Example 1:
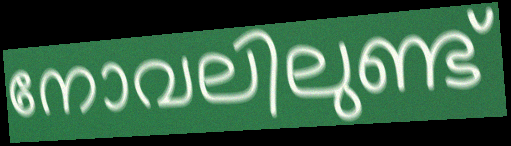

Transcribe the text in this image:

നോവലിലുണ്ട്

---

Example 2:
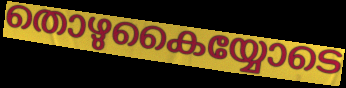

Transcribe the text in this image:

തൊഴുകൈയ്യോടെ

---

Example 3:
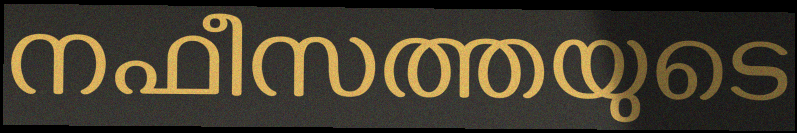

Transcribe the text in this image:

നഫീസത്തയുടെ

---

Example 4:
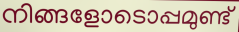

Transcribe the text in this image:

നിങ്ങളോടൊപ്പമുണ്ട്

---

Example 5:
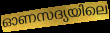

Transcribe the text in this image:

ഓണസദ്യയിലെ